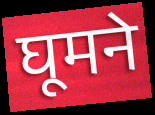
घूमने